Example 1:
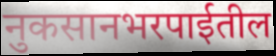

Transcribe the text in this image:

नुकसानभरपाईतील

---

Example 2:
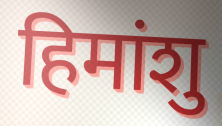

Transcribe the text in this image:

हिमांशु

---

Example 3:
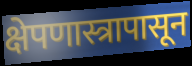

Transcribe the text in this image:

क्षेपणास्त्रापासून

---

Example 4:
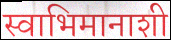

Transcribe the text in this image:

स्वाभिमानाशी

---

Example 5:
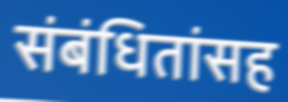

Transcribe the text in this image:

संबंधितांसह